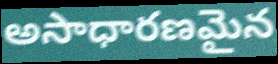
అసాధారణమైన